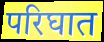
परिघात